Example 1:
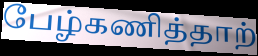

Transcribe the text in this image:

பேழ்கணித்தாற்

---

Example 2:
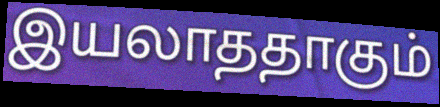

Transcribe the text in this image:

இயலாததாகும்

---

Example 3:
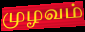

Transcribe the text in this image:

முழவம்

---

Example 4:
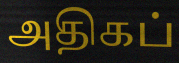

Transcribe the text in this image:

அதிகப்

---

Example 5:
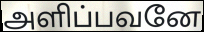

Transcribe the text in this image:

அளிப்பவனே